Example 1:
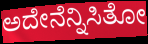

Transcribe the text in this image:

ಅದೇನೆನ್ನಿಸಿತೋ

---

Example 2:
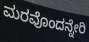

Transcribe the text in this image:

ಮರವೊಂದನ್ನೇರಿ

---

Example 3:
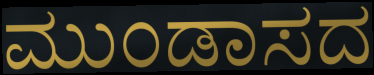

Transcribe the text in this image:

ಮುಂಡಾಸದ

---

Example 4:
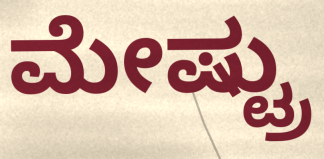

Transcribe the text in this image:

ಮೇಷ್ಟ್ರು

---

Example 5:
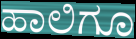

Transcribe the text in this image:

ಹಾಲಿಗೂ